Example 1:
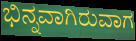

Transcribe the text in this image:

ಭಿನ್ನವಾಗಿರುವಾಗ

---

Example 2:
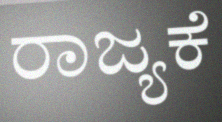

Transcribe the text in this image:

ರಾಜ್ಯಕೆ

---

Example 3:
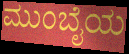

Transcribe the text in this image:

ಮುಂಬೈಯ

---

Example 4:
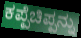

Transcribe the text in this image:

ಕಪ್ಪೆಚಿಪ್ಪನ್ನು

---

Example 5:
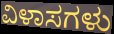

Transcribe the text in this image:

ವಿಳಾಸಗಳು